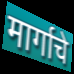
मार्गाचे